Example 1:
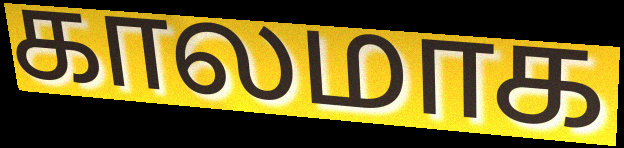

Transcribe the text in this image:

காலமாக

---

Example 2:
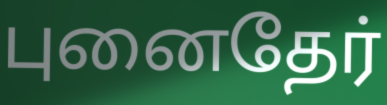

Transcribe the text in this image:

புனைதேர்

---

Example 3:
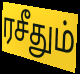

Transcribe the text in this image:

ரசீதும்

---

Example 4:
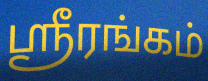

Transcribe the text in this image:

ஸ்ரீரங்கம்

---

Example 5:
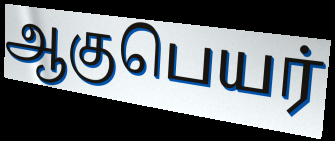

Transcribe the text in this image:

ஆகுபெயர்